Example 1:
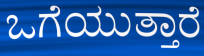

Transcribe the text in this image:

ಒಗೆಯುತ್ತಾರೆ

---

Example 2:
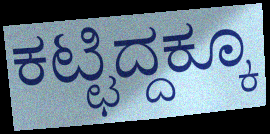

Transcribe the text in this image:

ಕಟ್ಟಿದ್ದಕ್ಕೂ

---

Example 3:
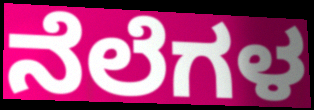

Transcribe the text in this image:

ನೆಲೆಗಳ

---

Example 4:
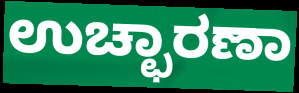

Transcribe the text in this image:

ಉಚ್ಛಾರಣಾ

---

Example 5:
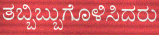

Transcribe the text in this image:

ತಬ್ಬಿಬ್ಬುಗೊಳಿಸಿದರು